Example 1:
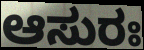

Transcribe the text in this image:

ಆಸುರಃ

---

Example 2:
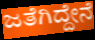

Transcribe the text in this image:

ಜತೆಗಿದ್ದೇನೆ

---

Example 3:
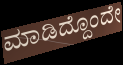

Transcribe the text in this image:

ಮಾಡಿದ್ದೊಂದೇ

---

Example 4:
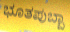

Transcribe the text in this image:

ಭೂತಪುಬ್ಬಾ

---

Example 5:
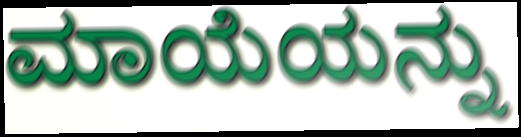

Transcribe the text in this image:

ಮಾಯೆಯನ್ನು